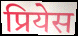
प्रियेस